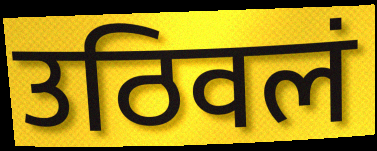
उठिवलं